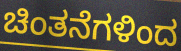
ಚಿಂತನೆಗಳಿಂದ